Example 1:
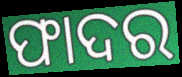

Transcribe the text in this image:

ଫାଦର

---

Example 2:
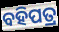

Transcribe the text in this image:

ବହିପତ୍ର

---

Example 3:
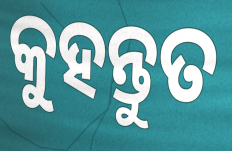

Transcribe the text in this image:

କୁହନ୍ତୁତ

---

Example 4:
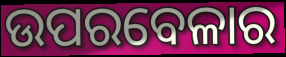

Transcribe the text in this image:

ଉପରବେଳାର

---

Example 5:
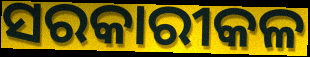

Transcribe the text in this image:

ସରକାରୀକଳ